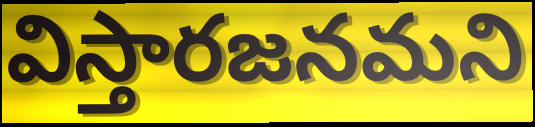
విస్తారజనమని